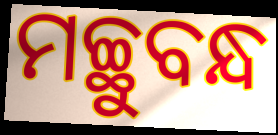
ମଚ୍ଛୁବନ୍ଧ